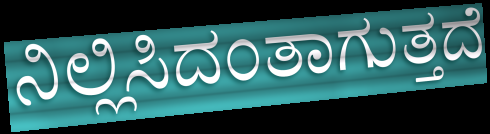
ನಿಲ್ಲಿಸಿದಂತಾಗುತ್ತದೆ